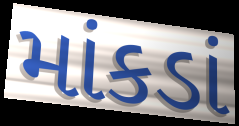
માંકડાં